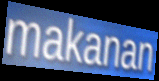
makanan